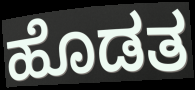
ಹೊಡತ